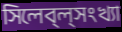
সিলেব্‌ল্‌সংখ্যা